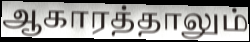
ஆகாரத்தாலும்